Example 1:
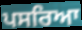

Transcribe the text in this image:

ਪਸਰਿਆ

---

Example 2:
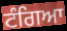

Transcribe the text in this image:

ਟੰਗਿਆ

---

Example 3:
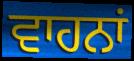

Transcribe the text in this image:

ਵਾਹਨਾਂ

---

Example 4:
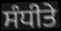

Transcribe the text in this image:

ਸੰਧੀਤੇ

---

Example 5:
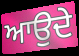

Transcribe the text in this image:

ਆਉਦੇ